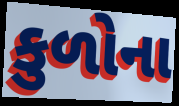
કુળોના